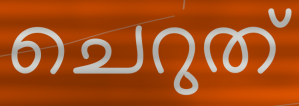
ചെറുത്